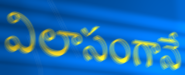
విలాసంగానే